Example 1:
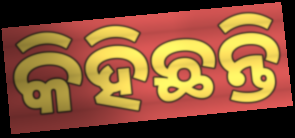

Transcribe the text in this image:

କିହିଛନ୍ତି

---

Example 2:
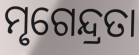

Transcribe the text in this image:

ମୃଗେନ୍ଦ୍ରତା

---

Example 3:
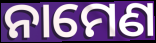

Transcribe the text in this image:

ନାମେଣ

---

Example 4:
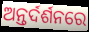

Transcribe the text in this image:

ଅନ୍ତର୍ଦର୍ଶନରେ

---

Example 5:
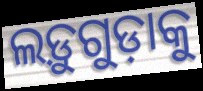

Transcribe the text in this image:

ଲଡ଼ୁଗୁଡ଼ାକୁ